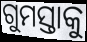
ଗୁମସ୍ତାକୁ